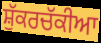
ਸ਼ੁੱਕਰਚੱਕੀਆ